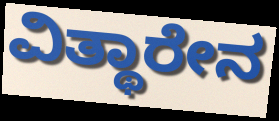
ವಿತ್ಥಾರೇನ